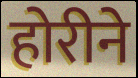
होरीने